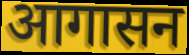
आगासन